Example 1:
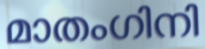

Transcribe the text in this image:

മാതംഗിനി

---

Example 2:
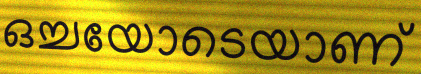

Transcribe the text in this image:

ഒച്ചയോടെയാണ്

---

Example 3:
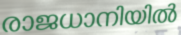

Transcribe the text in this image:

രാജധാനിയിൽ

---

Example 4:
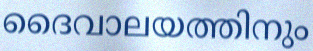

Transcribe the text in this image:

ദൈവാലയത്തിനും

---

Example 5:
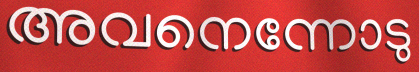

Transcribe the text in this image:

അവനെന്നോടു